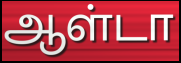
ஆள்டா